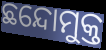
ଛନ୍ଦୋମୁକ୍ତ